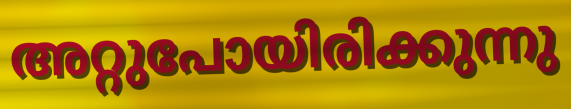
അറ്റുപോയിരിക്കുന്നു